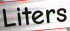
Liters